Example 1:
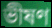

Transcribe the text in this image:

ভীষণ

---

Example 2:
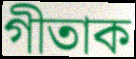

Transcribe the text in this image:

গীতাক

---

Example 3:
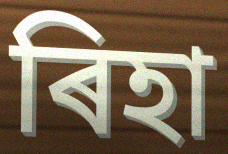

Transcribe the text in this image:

ৰিহা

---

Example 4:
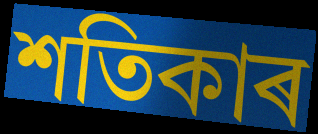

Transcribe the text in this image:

শতিকাৰ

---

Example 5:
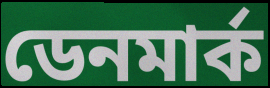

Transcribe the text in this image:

ডেনমাৰ্ক